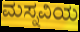
ಮಸ್ನವಿಯ